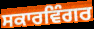
ਸਕਾਰਵਿੰਗਰ